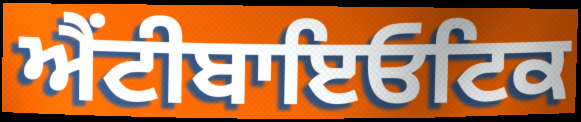
ਐਂਟੀਬਾਇਓਟਿਕ